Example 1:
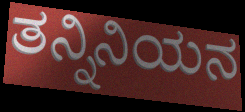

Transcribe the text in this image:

ತನ್ನಿನಿಯನ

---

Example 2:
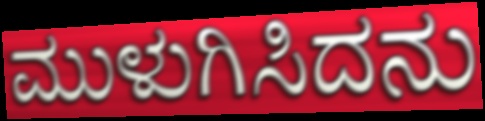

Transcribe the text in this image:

ಮುಳುಗಿಸಿದನು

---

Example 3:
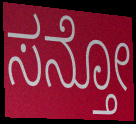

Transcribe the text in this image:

ಸನ್ತೋ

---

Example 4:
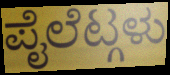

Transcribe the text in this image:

ಪೈಲೆಟ್ಗಳು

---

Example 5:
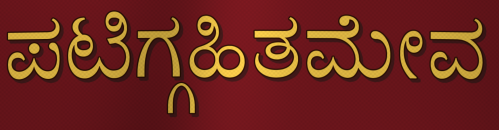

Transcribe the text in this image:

ಪಟಿಗ್ಗಹಿತಮೇವ